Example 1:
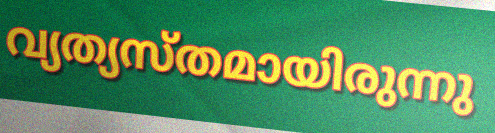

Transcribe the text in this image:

വ്യത്യസ്തമായിരുന്നു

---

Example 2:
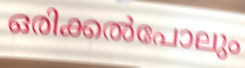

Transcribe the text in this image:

ഒരിക്കൽപോലും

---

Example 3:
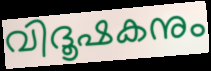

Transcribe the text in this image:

വിദൂഷകനും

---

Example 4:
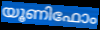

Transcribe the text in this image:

യൂണിഫോം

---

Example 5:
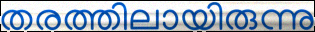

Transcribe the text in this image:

തരത്തിലായിരുന്നു